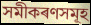
সমীকৰণসমূহ